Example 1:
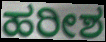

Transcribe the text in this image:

ಹರೀಶ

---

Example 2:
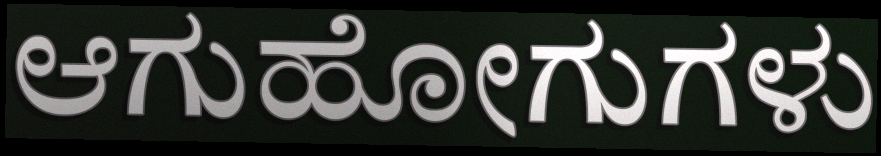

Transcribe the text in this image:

ಆಗುಹೋಗುಗಳು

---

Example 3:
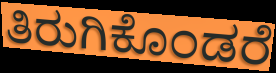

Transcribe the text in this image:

ತಿರುಗಿಕೊಂಡರೆ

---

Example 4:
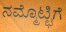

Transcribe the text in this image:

ನಮ್ಮೊಟ್ಟಿಗೆ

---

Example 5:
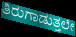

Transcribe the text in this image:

ತಿರುಗಾಡುತ್ತಲೇ